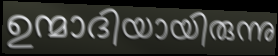
ഉന്മാദിയായിരുന്നു